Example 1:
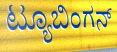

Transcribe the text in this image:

ಟ್ಯೂಬಿಂಗನ್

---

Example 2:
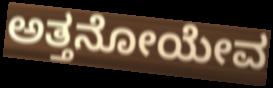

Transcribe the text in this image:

ಅತ್ತನೋಯೇವ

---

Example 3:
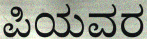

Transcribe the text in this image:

ಪಿಯವರ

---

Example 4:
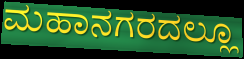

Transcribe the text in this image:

ಮಹಾನಗರದಲ್ಲೂ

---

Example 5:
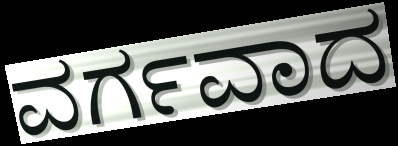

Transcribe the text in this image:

ವರ್ಗವಾದ